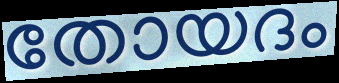
തോയദം